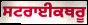
ਸਟਰਾਈਕਥਰੂ